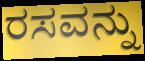
ರಸವನ್ನು